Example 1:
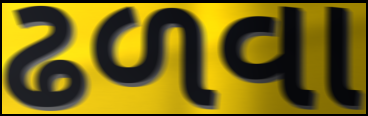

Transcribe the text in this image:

ઢળવા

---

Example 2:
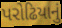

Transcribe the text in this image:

પરોઢિયાનું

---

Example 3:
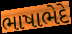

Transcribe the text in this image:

ભાષાભેદે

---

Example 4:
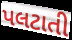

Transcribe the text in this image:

પલટાતી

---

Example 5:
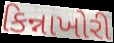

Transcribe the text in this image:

કિન્નાખોરી